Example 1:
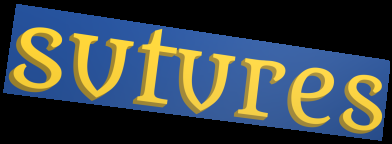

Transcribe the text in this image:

sutures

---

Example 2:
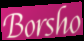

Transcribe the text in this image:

Borsho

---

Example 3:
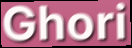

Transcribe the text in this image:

Ghori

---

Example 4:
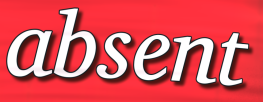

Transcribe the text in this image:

absent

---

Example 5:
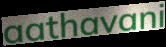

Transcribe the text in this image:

aathavani